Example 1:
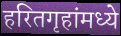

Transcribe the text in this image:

हरितगृहांमध्ये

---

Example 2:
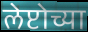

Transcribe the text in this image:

लेप्टोच्या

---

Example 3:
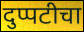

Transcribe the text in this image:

दुप्पटीचा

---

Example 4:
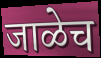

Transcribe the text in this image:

जाळेच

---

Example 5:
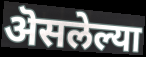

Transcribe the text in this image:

ऄसलेल्या